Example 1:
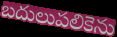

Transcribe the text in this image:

బదులుపలికెను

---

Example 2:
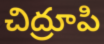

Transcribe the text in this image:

చిద్రూపి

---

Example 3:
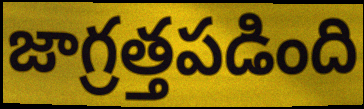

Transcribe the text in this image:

జాగ్రత్తపడింది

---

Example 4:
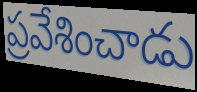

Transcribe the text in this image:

ప్రవేశించాడు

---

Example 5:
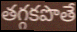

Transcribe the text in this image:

తగ్గకపొతే